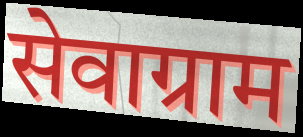
सेवाग्राम